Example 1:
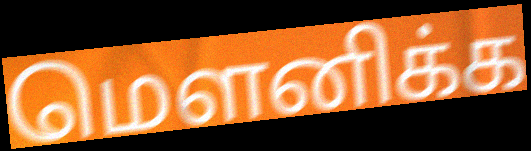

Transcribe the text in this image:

மெளனிக்க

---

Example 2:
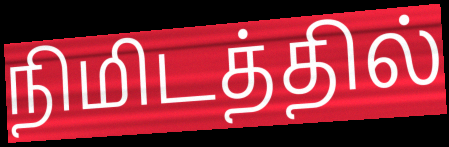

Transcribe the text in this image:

நிமிடத்தில்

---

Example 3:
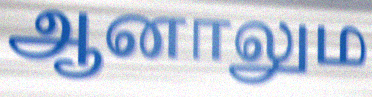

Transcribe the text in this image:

ஆனாலும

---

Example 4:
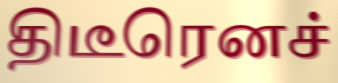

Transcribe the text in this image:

திடீரெனச்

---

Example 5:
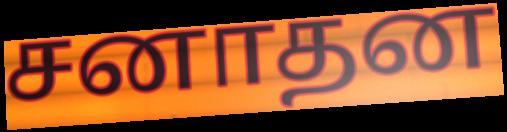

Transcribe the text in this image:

சனாதன